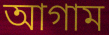
আগাম